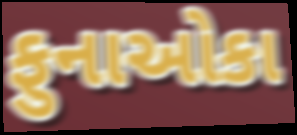
ફુનાઓકા